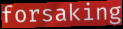
forsaking